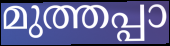
മുത്തപ്പാ